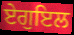
ਏਗੁਇਲ